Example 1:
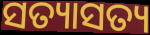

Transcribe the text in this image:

ସତ୍ୟାସତ୍ୟ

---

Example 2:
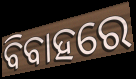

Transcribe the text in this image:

ବିବାହରେ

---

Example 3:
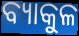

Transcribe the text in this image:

ବ୍ୟାକୁଳ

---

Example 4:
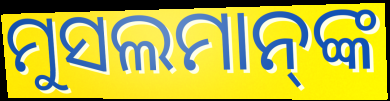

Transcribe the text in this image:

ମୁସଲମାନ୍‍ଙ୍କ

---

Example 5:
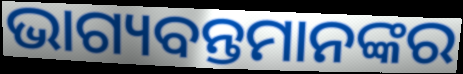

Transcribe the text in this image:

ଭାଗ୍ୟବନ୍ତମାନଙ୍କର